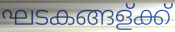
ഘടകങ്ങള്ക്ക്